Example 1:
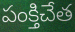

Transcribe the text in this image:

పంక్తిచేత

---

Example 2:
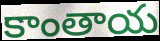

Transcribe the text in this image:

కాంతాయ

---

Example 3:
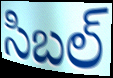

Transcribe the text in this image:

సిబల్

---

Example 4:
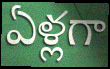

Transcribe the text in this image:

ఏళ్లగా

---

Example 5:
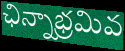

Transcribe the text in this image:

ఛిన్నాభ్రమివ